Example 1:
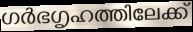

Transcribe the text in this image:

ഗർഭഗൃഹത്തിലേക്ക്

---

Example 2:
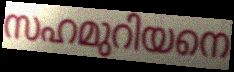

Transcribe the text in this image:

സഹമുറിയനെ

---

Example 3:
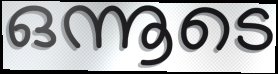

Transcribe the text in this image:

ഒന്നൂടെ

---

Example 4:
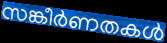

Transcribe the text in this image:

സങ്കീർണതകൾ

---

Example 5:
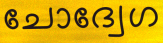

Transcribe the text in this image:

ചോദ്വേഗ